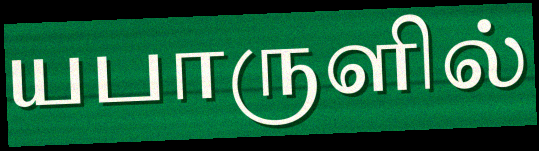
யபாருளில்